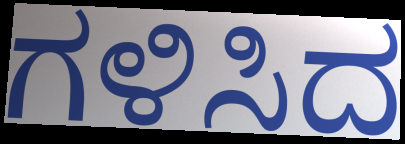
ಗಳಿಸಿದ